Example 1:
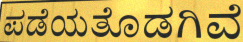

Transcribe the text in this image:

ಪಡೆಯತೊಡಗಿವೆ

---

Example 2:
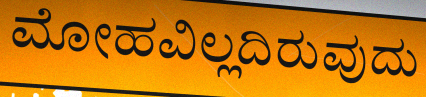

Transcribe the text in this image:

ಮೋಹವಿಲ್ಲದಿರುವುದು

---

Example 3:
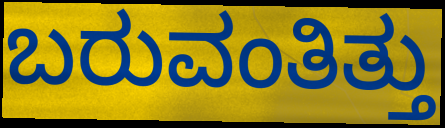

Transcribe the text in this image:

ಬರುವಂತಿತ್ತು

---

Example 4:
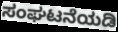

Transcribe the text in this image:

ಸಂಘಟನೆಯಡಿ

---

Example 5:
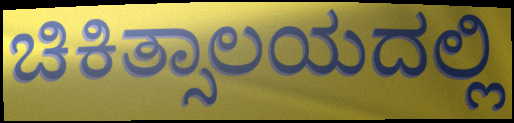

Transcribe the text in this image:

ಚಿಕಿತ್ಸಾಲಯದಲ್ಲಿ